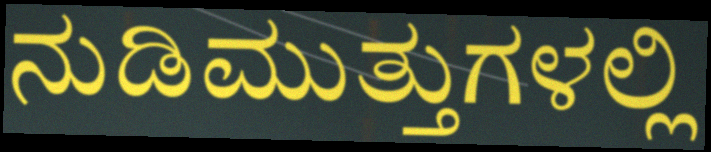
ನುಡಿಮುತ್ತುಗಳಲ್ಲಿ